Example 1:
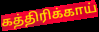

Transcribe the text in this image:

கத்திரிக்காய்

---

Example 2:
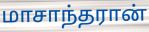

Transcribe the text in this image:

மாசாந்தரான்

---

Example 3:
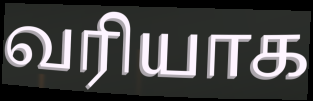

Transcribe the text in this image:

வரியாக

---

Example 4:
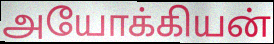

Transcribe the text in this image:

அயோக்கியன்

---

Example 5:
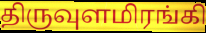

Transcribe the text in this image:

திருவுளமிரங்கி